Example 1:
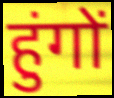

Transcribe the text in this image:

हुंगों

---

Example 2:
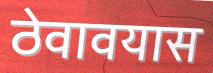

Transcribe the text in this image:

ठेवावयास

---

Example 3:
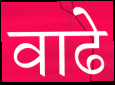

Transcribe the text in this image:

वाढे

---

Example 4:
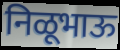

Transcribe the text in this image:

निळूभाऊ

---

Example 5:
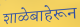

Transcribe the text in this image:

शाळेबाहेरून